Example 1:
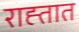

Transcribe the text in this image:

राह्तात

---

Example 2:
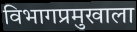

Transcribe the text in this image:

विभागप्रमुखाला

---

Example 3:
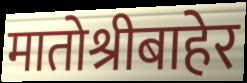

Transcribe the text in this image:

मातोश्रीबाहेर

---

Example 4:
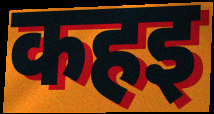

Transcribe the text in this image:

कहइ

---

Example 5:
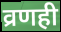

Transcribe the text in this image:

व्रणही